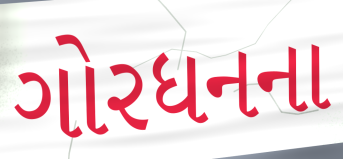
ગોરધનના